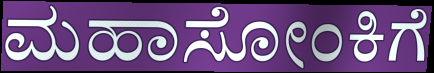
ಮಹಾಸೋಂಕಿಗೆ